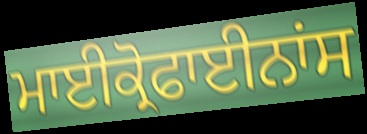
ਮਾਈਕ੍ਰੋਫਾਈਨਾਂਸ